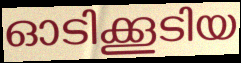
ഓടിക്കൂടിയ